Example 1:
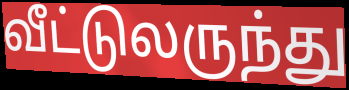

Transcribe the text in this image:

வீட்டுலருந்து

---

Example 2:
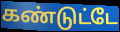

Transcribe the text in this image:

கண்டுட்டே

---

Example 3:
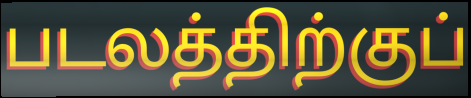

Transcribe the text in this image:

படலத்திற்குப்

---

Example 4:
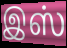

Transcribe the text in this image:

இஸ்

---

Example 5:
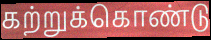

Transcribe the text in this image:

கற்றுக்கொண்டு